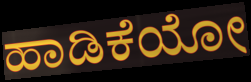
ಹಾಡಿಕೆಯೋ